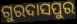
ଗୁରଦାସପୁର